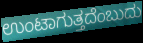
ಉಂಟಾಗುತ್ತದೆಂಬುದು